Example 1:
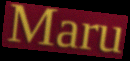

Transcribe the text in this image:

Maru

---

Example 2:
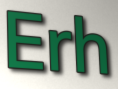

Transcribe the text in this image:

Erh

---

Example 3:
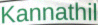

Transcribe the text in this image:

Kannathil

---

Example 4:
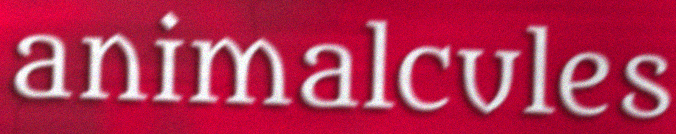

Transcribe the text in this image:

animalcules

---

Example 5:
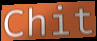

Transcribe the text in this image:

Chit